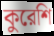
কুরেশি